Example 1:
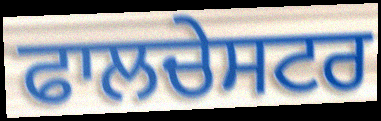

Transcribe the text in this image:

ਫਾਲਚੇਸਟਰ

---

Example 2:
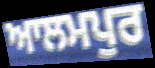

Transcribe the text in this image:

ਆਲਮਪੁਰ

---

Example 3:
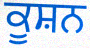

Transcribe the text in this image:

ਕੂਸ਼ਨ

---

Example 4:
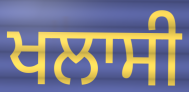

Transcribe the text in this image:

ਖਲਾਸੀ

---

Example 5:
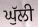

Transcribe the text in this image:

ਘੁੱਲੀ